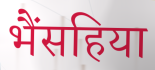
भैंसहिया